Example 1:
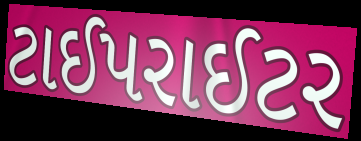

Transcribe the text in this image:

ટાઈપરાઈટર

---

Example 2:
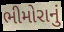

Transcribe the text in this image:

ભીમોરાનું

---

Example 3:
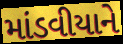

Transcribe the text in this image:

માંડવીયાને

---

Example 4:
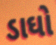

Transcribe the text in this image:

ડાઘો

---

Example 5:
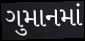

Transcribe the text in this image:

ગુમાનમાં